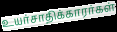
உயர்சாதிக்காரர்கள்